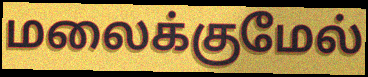
மலைக்குமேல்